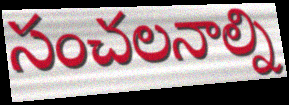
సంచలనాల్ని